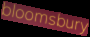
bloomsbury